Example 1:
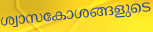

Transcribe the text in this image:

ശ്വാസകോശങ്ങളുടെ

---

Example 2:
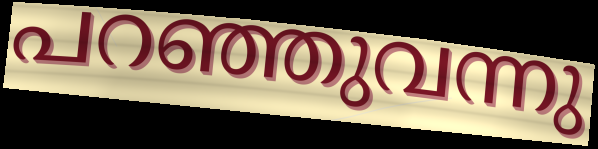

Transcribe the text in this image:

പറഞ്ഞുവന്നു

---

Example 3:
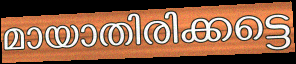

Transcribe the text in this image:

മായാതിരിക്കട്ടെ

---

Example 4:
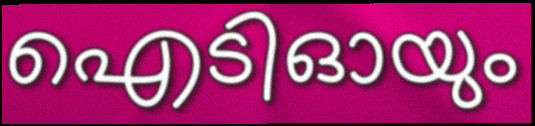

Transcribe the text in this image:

ഐടിഓയും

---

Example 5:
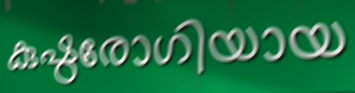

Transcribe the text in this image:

കുഷ്ഠരോഗിയായ